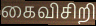
கைவிசிறி